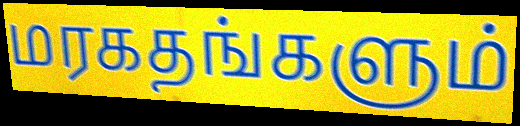
மரகதங்களும்